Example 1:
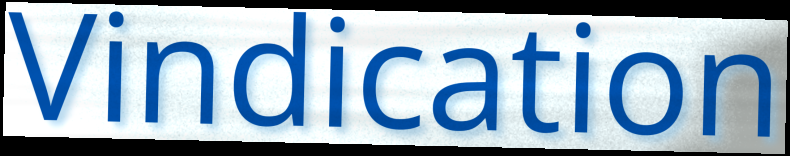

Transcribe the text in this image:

Vindication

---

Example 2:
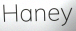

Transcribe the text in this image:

Haney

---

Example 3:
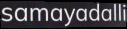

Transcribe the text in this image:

samayadalli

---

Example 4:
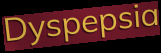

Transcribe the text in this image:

Dyspepsia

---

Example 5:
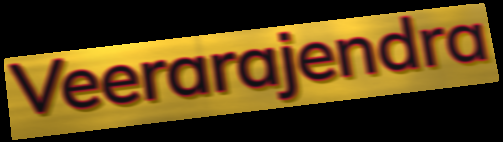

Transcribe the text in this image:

Veerarajendra